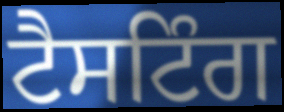
ਟੈਸਟਿੰਗ